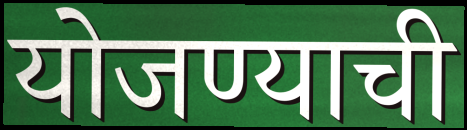
योजण्याची